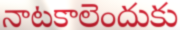
నాటకాలెందుకు